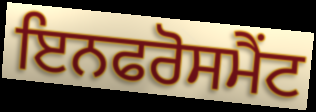
ਇਨਫਰੋਸਮੈਂਟ